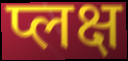
प्लक्ष